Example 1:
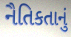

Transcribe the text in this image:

નૈતિકતાનું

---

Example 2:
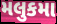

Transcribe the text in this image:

મલુકમા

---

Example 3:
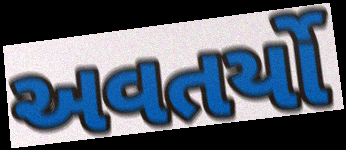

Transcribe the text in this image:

અવતર્યો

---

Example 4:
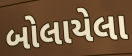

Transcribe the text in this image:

બોલાયેલા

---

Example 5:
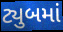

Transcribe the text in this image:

ટ્યુબમાં